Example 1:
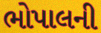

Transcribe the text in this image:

ભોપાલની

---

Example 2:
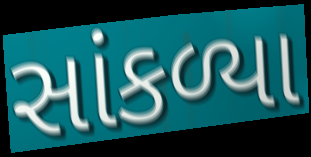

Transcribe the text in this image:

સાંકળ્યા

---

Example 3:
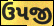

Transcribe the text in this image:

ઉપજી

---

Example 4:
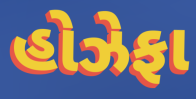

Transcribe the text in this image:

હોઝેફા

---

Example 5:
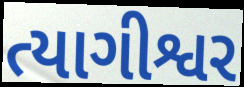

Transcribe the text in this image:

ત્યાગીશ્વર